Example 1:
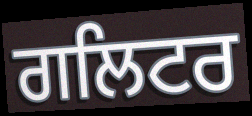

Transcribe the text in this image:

ਗਲਿਟਰ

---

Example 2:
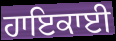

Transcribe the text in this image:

ਹਾਇਕਾਈ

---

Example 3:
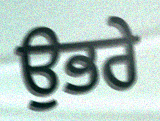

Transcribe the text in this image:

ਉਭਰੇ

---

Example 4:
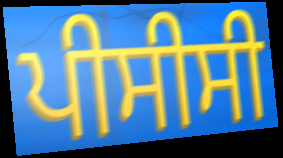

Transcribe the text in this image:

ਪੀਸੀਸੀ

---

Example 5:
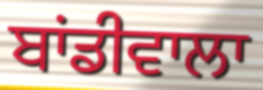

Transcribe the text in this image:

ਬਾਂਡੀਵਾਲਾ